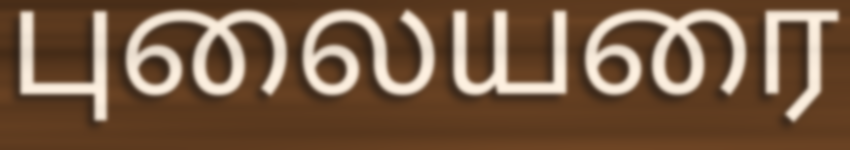
புலையரை